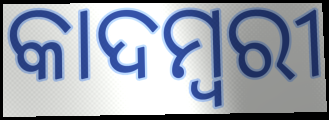
କାଦମ୍ୱରୀ